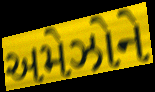
અમેઝોને